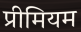
प्रीमियम